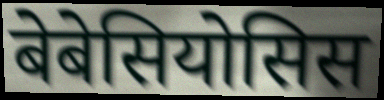
बेबेसियोसिस